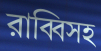
রাব্বিসহ